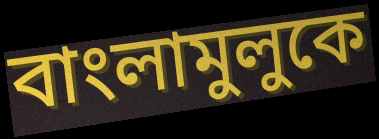
বাংলামুলুকে